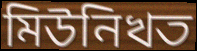
মিউনিখত